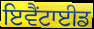
ਇਵੈਂਟਾਈਡ